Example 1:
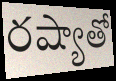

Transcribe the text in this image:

రష్యాతో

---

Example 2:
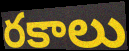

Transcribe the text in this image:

రకాలు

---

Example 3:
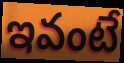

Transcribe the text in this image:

ఇవంటే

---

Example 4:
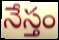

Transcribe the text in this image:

నేస్తం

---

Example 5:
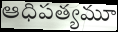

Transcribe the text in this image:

ఆధిపత్యమూ